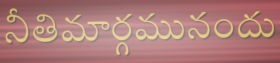
నీతిమార్గమునందు